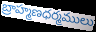
బ్రాహ్మణధర్మములు